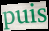
puis